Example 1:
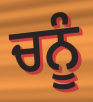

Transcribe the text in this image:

ਚਨੂੰ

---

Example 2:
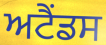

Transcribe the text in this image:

ਅਟੈਂਡਸ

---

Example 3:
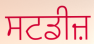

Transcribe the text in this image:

ਸਟਡੀਜ਼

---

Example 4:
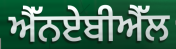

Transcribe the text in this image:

ਐੱਨਏਬੀਐੱਲ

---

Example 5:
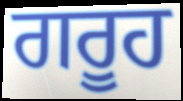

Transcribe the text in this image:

ਗਰੂਹ